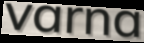
varna